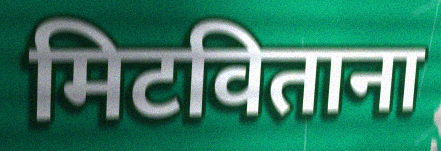
मिटविताना